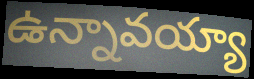
ఉన్నావయ్యా